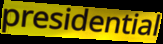
presidential